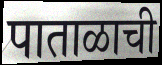
पाताळाची